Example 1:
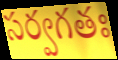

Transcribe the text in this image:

సర్వగతః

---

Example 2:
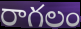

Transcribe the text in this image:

రాగలం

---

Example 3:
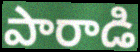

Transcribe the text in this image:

పారాడి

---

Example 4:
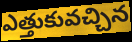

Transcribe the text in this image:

ఎత్తుకువచ్చిన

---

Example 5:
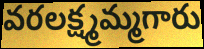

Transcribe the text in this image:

వరలక్ష్మమ్మగారు